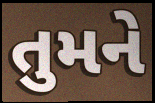
તુમને